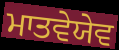
ਮਾਤਵੇਯੇਵ